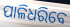
ପାଳିଧରିବେ